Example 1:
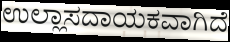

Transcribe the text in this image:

ಉಲ್ಲಾಸದಾಯಕವಾಗಿದೆ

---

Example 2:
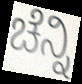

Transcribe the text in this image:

ಚೆನ್ನಿ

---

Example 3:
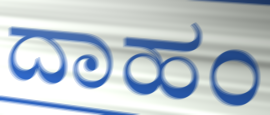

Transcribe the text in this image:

ದಾಹಂ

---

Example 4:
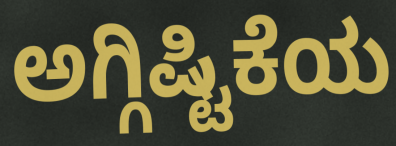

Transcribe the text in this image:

ಅಗ್ಗಿಷ್ಟಿಕೆಯ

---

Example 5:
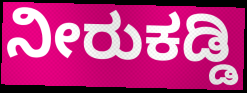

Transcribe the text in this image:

ನೀರುಕಡ್ಡಿ